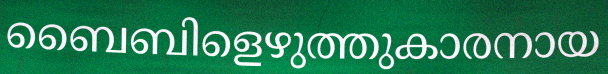
ബൈബിളെഴുത്തുകാരനായ